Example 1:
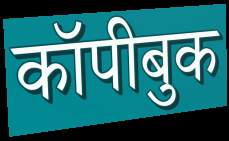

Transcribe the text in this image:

कॉपीबुक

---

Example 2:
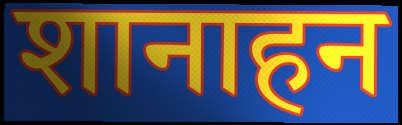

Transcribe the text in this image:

शानाहन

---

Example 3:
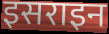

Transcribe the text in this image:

इसराइन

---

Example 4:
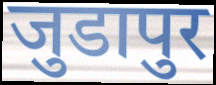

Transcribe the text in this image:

जुडापुर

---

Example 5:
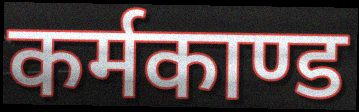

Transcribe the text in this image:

कर्मकाण्ड